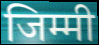
जिम्मी